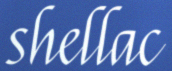
shellac